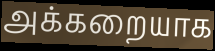
அக்கறையாக